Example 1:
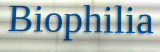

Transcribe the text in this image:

Biophilia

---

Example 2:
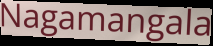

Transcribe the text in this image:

Nagamangala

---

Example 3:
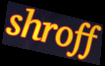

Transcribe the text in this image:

shroff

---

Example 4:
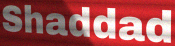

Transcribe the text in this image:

Shaddad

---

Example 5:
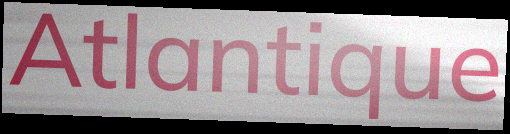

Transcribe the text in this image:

Atlantique